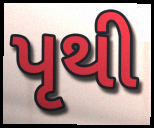
પૃથી